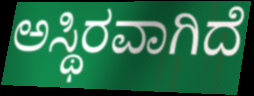
ಅಸ್ಥಿರವಾಗಿದೆ